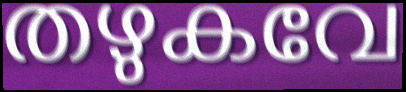
തഴുകവേ